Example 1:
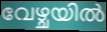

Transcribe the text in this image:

വേഴ്ചയിൽ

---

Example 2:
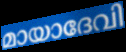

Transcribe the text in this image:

മായാദേവി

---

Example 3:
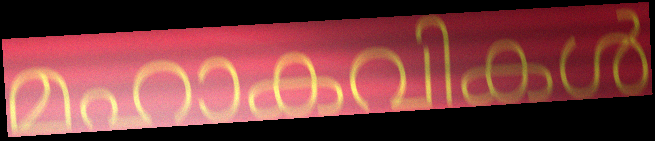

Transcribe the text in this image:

മഹാകവികൾ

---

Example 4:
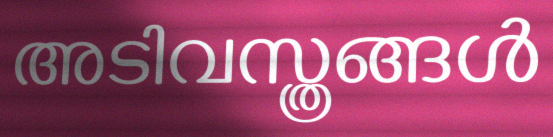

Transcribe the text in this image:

അടിവസ്ത്രങ്ങൾ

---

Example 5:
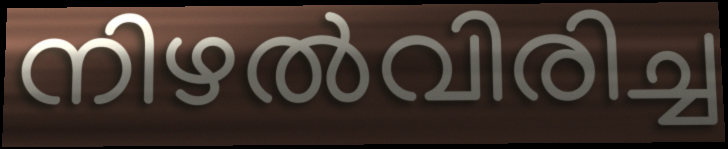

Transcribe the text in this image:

നിഴൽവിരിച്ച